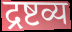
द्रष्टव्य